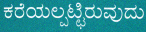
ಕರೆಯಲ್ಪಟ್ಟಿರುವುದು